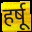
हर्षू